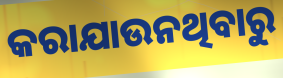
କରାଯାଉନଥିବାରୁ